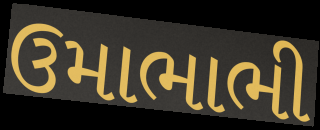
ઉમાભાભી